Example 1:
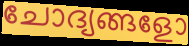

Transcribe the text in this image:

ചോദ്യങ്ങളോ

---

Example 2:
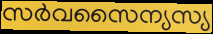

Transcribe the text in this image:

സർവസൈന്യസ്യ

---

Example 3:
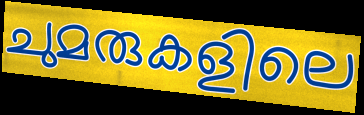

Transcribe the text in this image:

ചുമരുകളിലെ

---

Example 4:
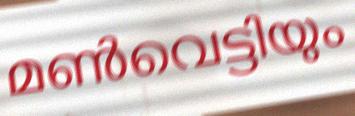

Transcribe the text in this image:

മൺവെട്ടിയും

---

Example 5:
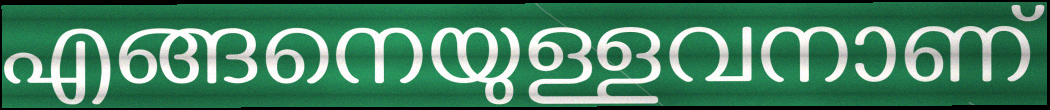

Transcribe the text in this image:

എങ്ങനെയുള്ളവനാണ്